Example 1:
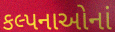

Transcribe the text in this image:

કલ્પનાઓનાં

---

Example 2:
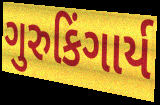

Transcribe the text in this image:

ગુરુકિંગાર્ય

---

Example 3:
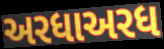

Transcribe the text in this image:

અરધાઅરધ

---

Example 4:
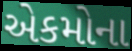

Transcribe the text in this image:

એકમોના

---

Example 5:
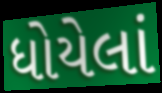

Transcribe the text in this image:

ધોયેલાં